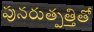
పునరుత్పత్తితో